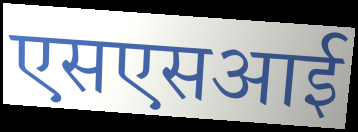
एसएसआई